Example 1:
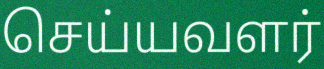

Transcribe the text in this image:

செய்யவளர்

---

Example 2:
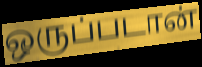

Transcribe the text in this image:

ஒருப்படான்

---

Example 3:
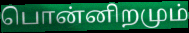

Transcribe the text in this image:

பொன்னிறமும்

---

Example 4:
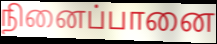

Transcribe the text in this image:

நினைப்பானை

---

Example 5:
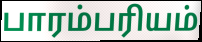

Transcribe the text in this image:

பாரம்பரியம்